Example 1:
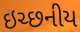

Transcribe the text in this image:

ઇચ્છનીય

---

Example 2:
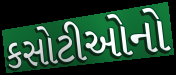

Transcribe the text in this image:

કસોટીઓનો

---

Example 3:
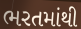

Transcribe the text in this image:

ભરતમાંથી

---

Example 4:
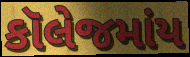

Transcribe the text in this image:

કૉલેજમાંય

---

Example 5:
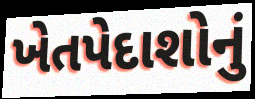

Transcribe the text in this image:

ખેતપેદાશોનું